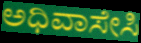
ಅಧಿವಾಸೇಸಿ